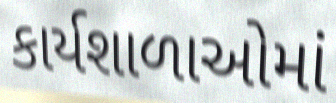
કાર્યશાળાઓમાં